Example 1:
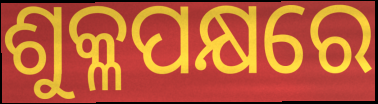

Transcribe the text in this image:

ଶୁକ୍ଳପକ୍ଷରେ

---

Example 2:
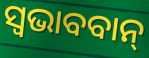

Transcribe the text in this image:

ସ୍ଵଭାବବାନ୍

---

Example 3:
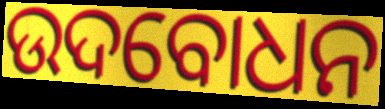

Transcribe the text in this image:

ଉଦବୋଧନ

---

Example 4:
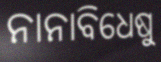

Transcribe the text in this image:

ନାନାବିଧେଷୁ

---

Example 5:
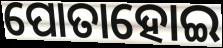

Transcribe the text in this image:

ପୋତାହୋଇ